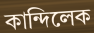
কান্দিলেক